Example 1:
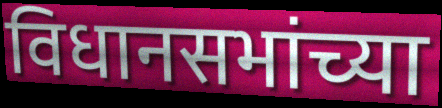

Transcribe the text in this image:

विधानसभांच्या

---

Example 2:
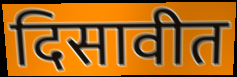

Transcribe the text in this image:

दिसावीत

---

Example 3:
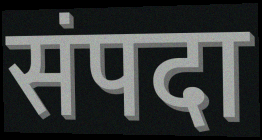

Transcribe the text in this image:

संपदा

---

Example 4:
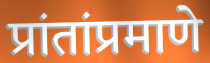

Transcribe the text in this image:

प्रांतांप्रमाणे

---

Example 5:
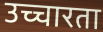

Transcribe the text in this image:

उच्चारता